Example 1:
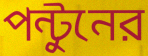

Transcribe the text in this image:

পন্টুনের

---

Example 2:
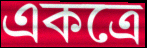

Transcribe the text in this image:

একত্রে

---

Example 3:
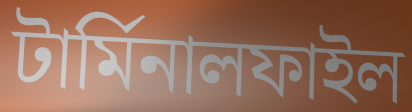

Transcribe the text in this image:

টার্মিনালফাইল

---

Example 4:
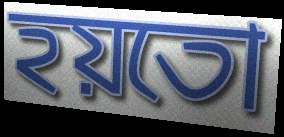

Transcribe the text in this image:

হয়তো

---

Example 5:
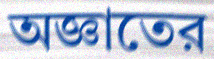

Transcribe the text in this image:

অজ্ঞাতের